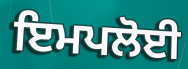
ਇਮਪਲੋਈ